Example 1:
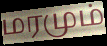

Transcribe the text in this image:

மரமும்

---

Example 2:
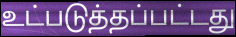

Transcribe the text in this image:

உட்படுத்தப்பட்டது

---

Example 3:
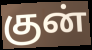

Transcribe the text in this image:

குன்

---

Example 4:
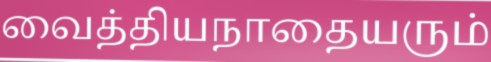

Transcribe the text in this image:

வைத்தியநாதையரும்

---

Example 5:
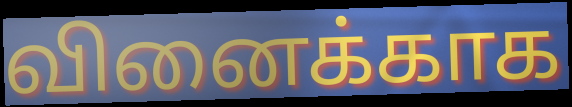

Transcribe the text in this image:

வினைக்காக